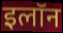
इलॉन